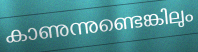
കാണുന്നുണ്ടെങ്കിലും